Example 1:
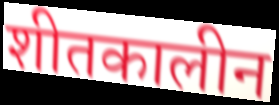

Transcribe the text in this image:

शीतकालीन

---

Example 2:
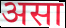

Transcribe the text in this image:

असा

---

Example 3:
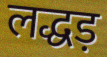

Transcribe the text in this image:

लद्धड़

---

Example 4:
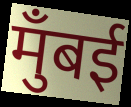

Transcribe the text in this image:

मुँबई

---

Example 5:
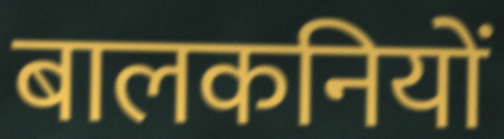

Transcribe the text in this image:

बालकनियों